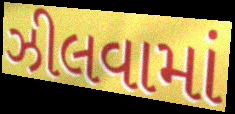
ઝીલવામાં